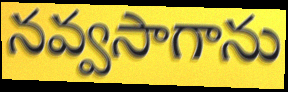
నవ్వసాగాను